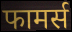
फामर्स